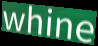
whine